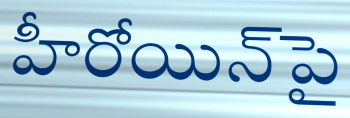
హీరోయిన్‌పై